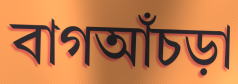
বাগআঁচড়া